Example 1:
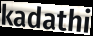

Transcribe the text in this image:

kadathi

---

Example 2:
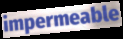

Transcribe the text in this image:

impermeable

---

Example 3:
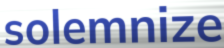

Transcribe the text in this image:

solemnize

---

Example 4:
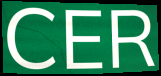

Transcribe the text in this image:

CER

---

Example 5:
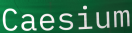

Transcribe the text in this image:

Caesium